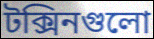
টক্সিনগুলো